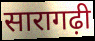
सारागढ़ी